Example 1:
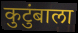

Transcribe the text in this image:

कुटुंबाला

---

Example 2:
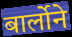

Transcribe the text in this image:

बार्लोने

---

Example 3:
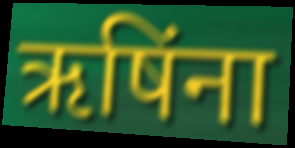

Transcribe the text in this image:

ऋषिंना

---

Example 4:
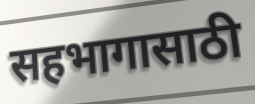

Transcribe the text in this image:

सहभागासाठी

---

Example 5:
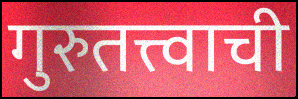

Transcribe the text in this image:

गुरुतत्त्वाची